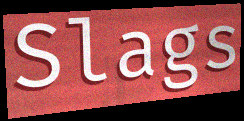
Slags